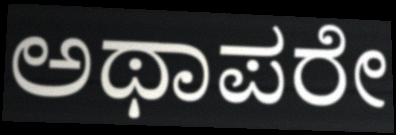
ಅಥಾಪರೇ